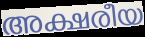
അക്ഷരീയ